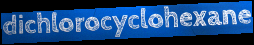
dichlorocyclohexane